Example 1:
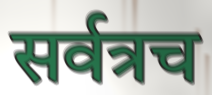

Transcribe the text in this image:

सर्वत्रच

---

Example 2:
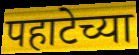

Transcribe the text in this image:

पहाटेच्या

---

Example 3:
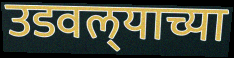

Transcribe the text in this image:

उडवल्याच्या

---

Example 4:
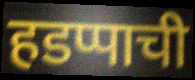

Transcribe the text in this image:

हडप्पाची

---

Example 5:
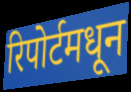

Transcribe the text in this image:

रिपोर्टमधून